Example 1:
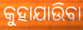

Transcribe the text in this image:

କୁହାଯାଉିବା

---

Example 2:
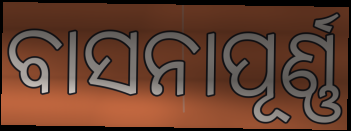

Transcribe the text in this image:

ବାସନାପୂର୍ଣ୍ଣ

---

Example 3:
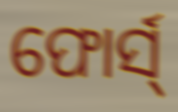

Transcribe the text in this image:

ଫୋର୍ସ୍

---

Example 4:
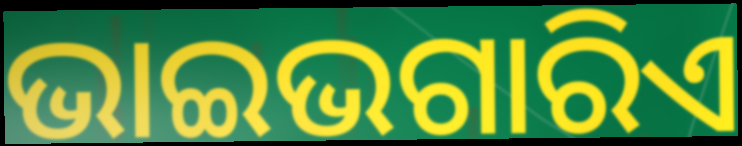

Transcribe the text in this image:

ଭାଇଭଗାରିଏ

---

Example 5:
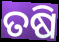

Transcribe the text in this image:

ତଷି